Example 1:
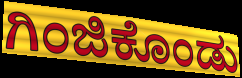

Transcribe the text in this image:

ಗಿಂಜಿಕೊಂಡು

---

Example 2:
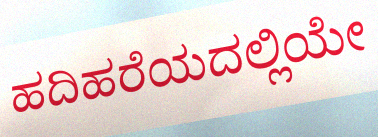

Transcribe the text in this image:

ಹದಿಹರೆಯದಲ್ಲಿಯೇ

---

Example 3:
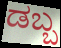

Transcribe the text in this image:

ಡಬ್ಬ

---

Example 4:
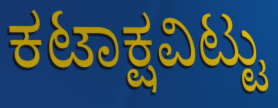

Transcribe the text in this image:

ಕಟಾಕ್ಷವಿಟ್ಟು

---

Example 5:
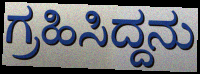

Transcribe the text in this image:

ಗ್ರಹಿಸಿದ್ದನು